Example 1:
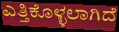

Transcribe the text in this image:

ಎತ್ತಿಕೊಳ್ಳಲಾಗಿದೆ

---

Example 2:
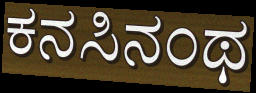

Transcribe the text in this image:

ಕನಸಿನಂಥ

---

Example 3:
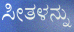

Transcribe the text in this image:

ಸೀತಳನ್ನು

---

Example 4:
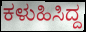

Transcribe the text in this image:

ಕಳುಹಿಸಿದ್ದ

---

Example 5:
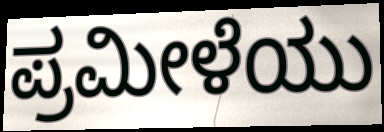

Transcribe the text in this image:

ಪ್ರಮೀಳೆಯು